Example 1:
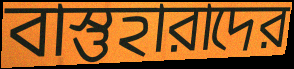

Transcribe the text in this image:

বাস্তুহারাদের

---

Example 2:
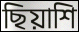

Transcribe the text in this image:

ছিয়াশি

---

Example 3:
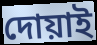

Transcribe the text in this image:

দোয়াই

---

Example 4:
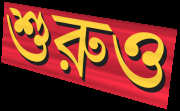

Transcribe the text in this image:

শুরুও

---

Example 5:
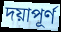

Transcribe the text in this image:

দয়াপূর্ণ